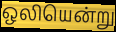
ஒலியென்று